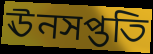
ঊনসপ্ততি